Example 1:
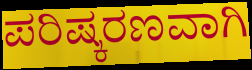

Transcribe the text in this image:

ಪರಿಷ್ಕರಣವಾಗಿ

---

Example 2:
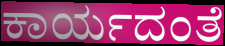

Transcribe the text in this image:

ಕಾರ್ಯದಂತೆ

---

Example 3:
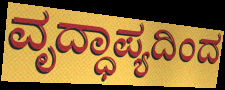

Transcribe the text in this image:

ವೃದ್ಧಾಪ್ಯದಿಂದ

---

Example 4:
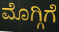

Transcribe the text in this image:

ಮೊಗ್ಗಿಗೆ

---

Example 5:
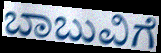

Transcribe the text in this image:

ಬಾಬುವಿಗೆ